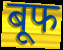
बूफ